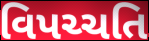
વિપચ્ચતિ